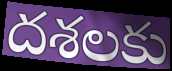
దశలకు